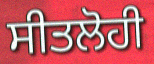
ਸੀਤਲੋਹੀ